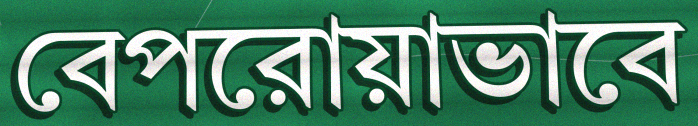
বেপরোয়াভাবে